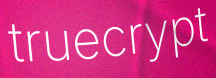
truecrypt